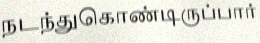
நடந்துகொண்டிருப்பார்